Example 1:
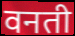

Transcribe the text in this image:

वनती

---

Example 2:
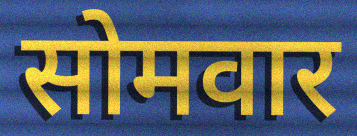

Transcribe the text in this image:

सोमवार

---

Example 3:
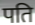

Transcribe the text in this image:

पति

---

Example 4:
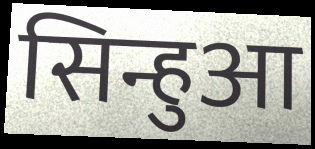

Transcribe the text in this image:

सिन्हुआ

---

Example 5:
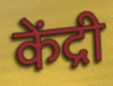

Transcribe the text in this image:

केंद्री